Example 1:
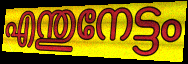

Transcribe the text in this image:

എന്തുനേട്ടം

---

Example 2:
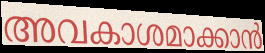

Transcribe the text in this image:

അവകാശമാക്കാൻ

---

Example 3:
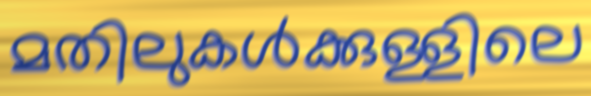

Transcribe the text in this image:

മതിലുകൾക്കുള്ളിലെ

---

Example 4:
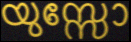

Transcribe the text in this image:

യുസ്സോ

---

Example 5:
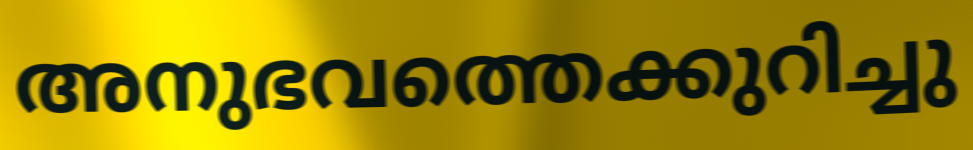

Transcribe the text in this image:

അനുഭവത്തെക്കുറിച്ചു